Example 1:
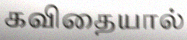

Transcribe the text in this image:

கவிதையால்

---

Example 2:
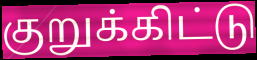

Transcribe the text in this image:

குறுக்கிட்டு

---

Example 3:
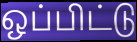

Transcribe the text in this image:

ஒப்பிட்டு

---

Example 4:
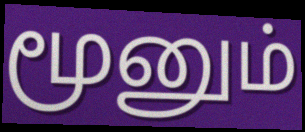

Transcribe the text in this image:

மூனும்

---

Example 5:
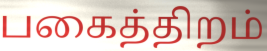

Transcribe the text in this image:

பகைத்திறம்